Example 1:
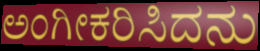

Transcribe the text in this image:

ಅಂಗೀಕರಿಸಿದನು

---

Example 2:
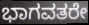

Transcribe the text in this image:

ಭಾಗವತರೇ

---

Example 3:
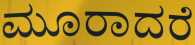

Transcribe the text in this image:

ಮೂರಾದರೆ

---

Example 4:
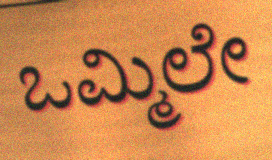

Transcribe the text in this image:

ಒಮ್ಮಿಲೇ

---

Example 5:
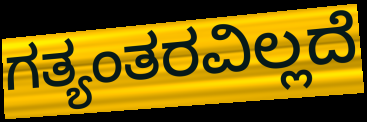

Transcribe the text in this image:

ಗತ್ಯಂತರವಿಲ್ಲದೆ